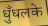
धुँधलके